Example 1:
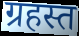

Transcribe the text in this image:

ग्रहस्त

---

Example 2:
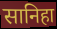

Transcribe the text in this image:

सानिहा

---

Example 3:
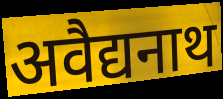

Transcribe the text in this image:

अवैद्यनाथ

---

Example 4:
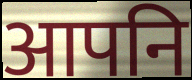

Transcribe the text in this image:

आपनि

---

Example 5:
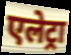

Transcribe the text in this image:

एलेट्रा